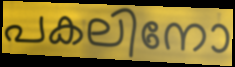
പകലിനോ